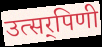
उत्सर्पिणी